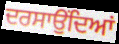
ਦਰਸਾਉਂਦਿਆਂ